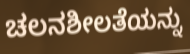
ಚಲನಶೀಲತೆಯನ್ನು